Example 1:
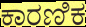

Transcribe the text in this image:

ಕಾರಣಿಕ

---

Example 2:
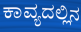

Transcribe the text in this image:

ಕಾವ್ಯದಲ್ಲಿನ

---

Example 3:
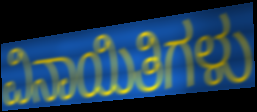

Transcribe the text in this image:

ವಿನಾಯಿತಿಗಳು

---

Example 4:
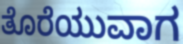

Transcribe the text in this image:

ತೊರೆಯುವಾಗ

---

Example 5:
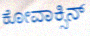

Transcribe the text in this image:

ಕೋವಾಕ್ಸಿನ್